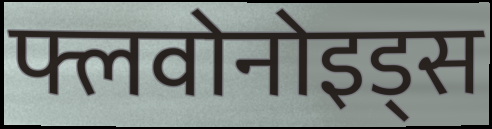
फ्लवोनोइड्स